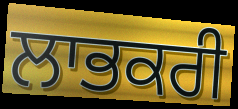
ਲਾਭਕਰੀ